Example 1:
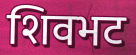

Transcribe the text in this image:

शिवभट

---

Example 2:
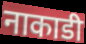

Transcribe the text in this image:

नाकाडी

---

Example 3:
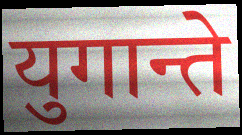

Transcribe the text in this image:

युगान्ते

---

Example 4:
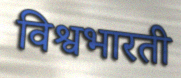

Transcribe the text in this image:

विश्वभारती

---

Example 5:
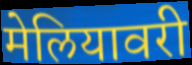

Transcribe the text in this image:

मेलियावरी